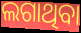
ଲଗାଥିବା